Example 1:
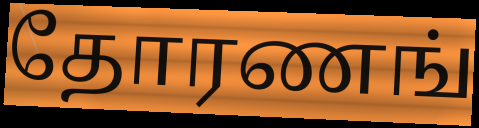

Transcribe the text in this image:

தோரணங்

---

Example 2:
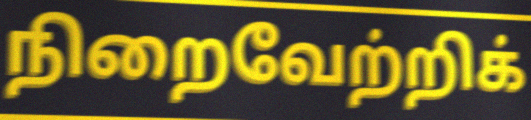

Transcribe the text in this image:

நிறைவேற்றிக்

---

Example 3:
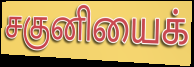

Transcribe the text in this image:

சகுனியைக்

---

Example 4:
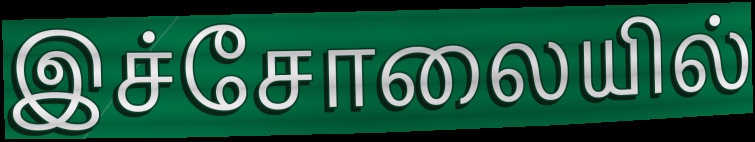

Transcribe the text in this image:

இச்சோலையில்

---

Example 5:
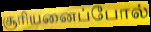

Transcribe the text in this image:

சூரியனைப்போல்